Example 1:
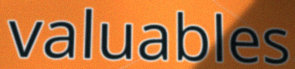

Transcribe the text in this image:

valuables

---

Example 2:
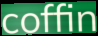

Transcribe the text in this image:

coffin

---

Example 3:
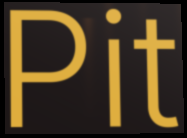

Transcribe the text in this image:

Pit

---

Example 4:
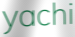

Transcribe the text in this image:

yachi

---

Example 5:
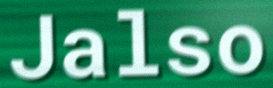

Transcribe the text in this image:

Jalso